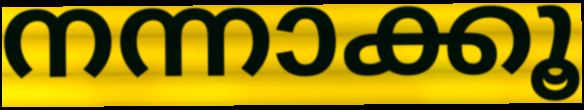
നന്നാക്കൂ